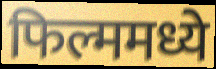
फिल्ममध्ये